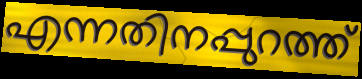
എന്നതിനപ്പുറത്ത്